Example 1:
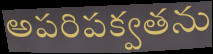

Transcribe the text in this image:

అపరిపక్వతను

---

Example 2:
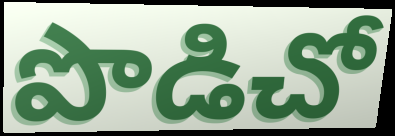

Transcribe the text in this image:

పొడిచో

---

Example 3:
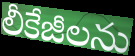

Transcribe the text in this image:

లీకేజీలను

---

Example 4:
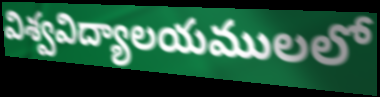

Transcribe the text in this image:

విశ్వవిద్యాలయములలో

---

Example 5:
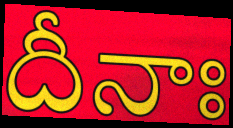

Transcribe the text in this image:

దీనాః